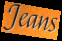
Jeans